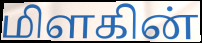
மிளகின்